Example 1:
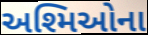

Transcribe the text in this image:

અશ્મિઓના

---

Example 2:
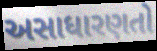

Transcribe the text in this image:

અસાધારણતો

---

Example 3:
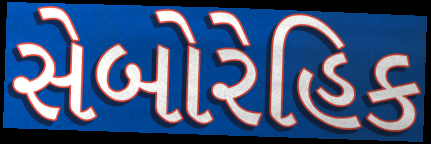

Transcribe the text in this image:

સેબોરેહિક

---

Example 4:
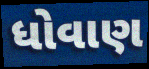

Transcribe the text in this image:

ધોવાણ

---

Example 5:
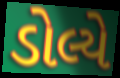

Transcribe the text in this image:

ડોલ્યે